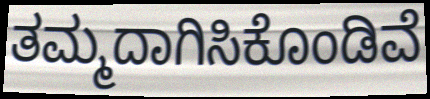
ತಮ್ಮದಾಗಿಸಿಕೊಂಡಿವೆ